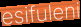
esifuleni